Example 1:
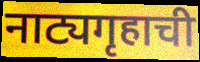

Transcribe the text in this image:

नाट्यगृहाची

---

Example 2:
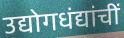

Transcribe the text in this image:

उद्योगधंद्यांचीं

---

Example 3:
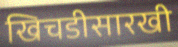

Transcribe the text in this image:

खिचडीसारखी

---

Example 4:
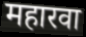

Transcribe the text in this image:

महारवा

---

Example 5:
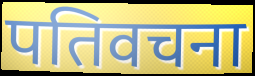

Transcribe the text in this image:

पतिवचना